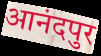
आनंदपुर